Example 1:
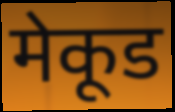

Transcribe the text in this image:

मेकूड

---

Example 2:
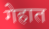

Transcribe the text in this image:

गेहात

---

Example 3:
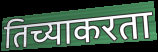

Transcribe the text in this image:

तिच्याकरता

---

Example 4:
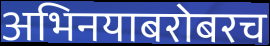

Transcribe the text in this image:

अभिनयाबरोबरच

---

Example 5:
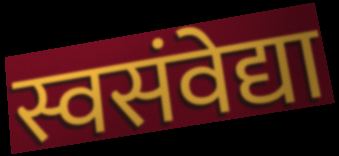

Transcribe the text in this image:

स्वसंवेद्या